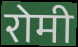
रोमी